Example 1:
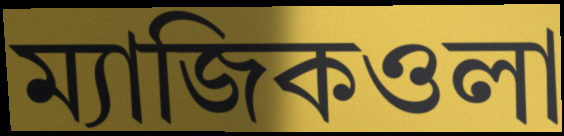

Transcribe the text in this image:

ম্যাজিকওলা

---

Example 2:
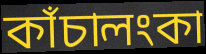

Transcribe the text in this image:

কাঁচালংকা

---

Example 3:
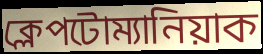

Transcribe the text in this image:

ক্লেপটোম্যানিয়াক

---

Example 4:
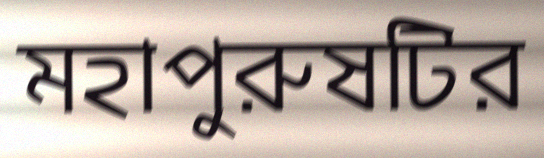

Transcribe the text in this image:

মহাপুরুষটির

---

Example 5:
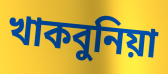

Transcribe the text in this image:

খাকবুনিয়া